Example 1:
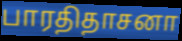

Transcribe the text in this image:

பாரதிதாசனா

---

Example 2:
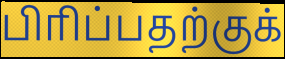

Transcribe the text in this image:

பிரிப்பதற்குக்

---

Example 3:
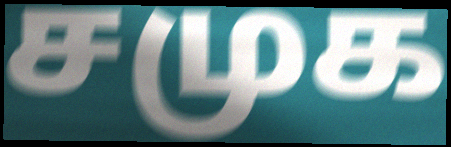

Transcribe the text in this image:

சமுக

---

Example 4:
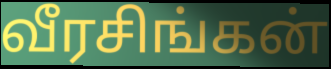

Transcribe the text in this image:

வீரசிங்கன்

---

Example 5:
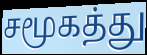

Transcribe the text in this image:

சமூகத்து